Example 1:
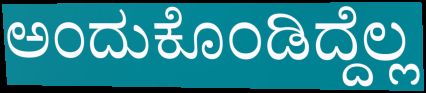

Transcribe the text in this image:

ಅಂದುಕೊಂಡಿದ್ದೆಲ್ಲ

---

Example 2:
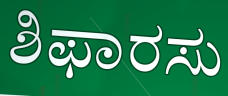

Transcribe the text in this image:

ಶಿಫಾರಸು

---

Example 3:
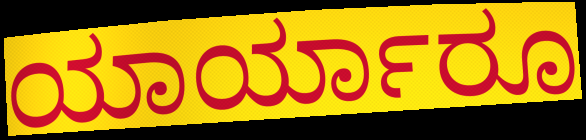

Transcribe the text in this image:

ಯಾರ್ಯಾರೂ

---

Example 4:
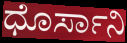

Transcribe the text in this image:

ಧೊರ್ಸಾನಿ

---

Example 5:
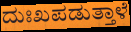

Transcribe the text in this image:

ದುಃಖಪಡುತ್ತಾಳೆ